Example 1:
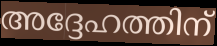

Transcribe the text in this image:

അദ്ദേഹത്തിന്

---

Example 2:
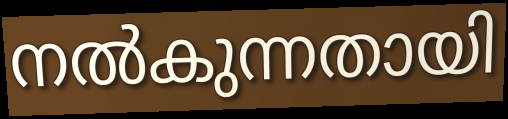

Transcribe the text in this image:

നൽകുന്നതായി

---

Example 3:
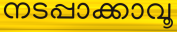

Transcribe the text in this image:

നടപ്പാക്കാവൂ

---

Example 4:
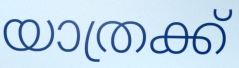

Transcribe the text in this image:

യാത്രക്ക്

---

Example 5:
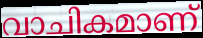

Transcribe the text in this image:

വാചികമാണ്